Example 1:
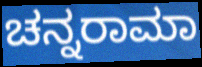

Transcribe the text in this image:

ಚನ್ನರಾಮಾ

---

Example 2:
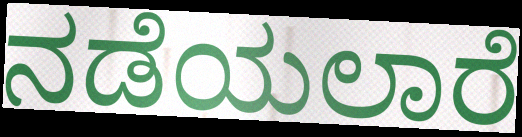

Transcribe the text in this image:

ನಡೆಯಲಾರೆ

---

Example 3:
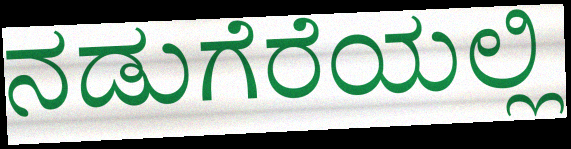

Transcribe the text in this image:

ನಡುಗೆರೆಯಲ್ಲಿ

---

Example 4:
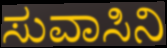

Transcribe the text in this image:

ಸುವಾಸಿನಿ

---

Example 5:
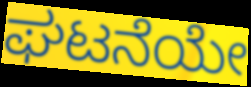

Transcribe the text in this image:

ಘಟನೆಯೇ